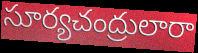
సూర్యచంద్రులారా